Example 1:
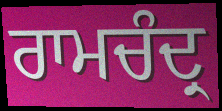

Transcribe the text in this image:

ਰਾਮਚੰਦ੍ਰ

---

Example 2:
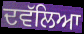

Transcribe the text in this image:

ਦਵੱਲਿਆ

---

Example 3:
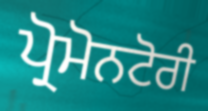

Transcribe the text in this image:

ਪ੍ਰੋਮੋਨਟੋਰੀ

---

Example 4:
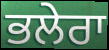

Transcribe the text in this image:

ਭਲੇਰਾ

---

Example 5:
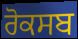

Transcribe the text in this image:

ਰੋਕਸਬ